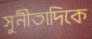
সুনীতাদিকে